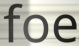
foe